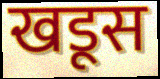
खडूस